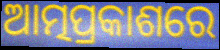
ଆତ୍ମପ୍ରକାଶରେ